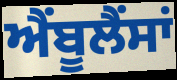
ਐੰਬੂਲੈਂਸਾਂ